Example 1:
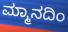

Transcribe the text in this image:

ಮ್ಮಾನದಿಂ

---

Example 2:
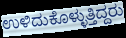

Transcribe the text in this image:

ಉಳಿದುಕೊಳ್ಳುತ್ತಿದ್ದರು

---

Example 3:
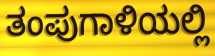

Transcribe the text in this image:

ತಂಪುಗಾಳಿಯಲ್ಲಿ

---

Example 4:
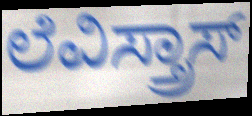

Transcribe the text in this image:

ಲೆವಿಸ್ತ್ರಾಸ್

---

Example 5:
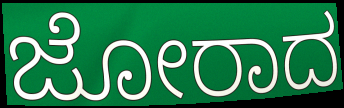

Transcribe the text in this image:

ಜೋರಾದ